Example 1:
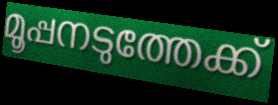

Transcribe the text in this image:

മൂപ്പനടുത്തേക്ക്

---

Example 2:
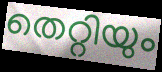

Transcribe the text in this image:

തെറ്റിയും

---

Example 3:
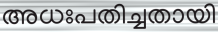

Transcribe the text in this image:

അധഃപതിച്ചതായി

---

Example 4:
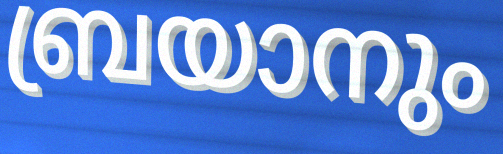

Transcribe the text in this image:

ബ്രയാനും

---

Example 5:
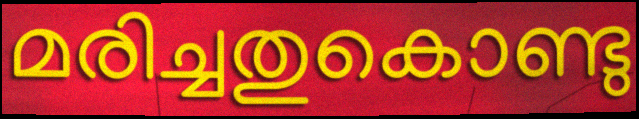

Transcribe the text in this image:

മരിച്ചതുകൊണ്ടു